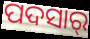
ପଦସାର୍